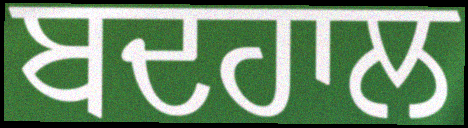
ਬਦਹਾਲ